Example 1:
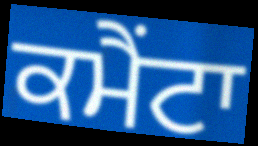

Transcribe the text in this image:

ਕਮੈਂਟਾ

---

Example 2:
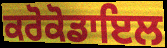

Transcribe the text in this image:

ਕਰੋਕੋਡਾਇਲ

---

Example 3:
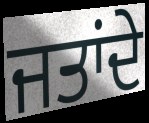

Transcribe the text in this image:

ਜਤਾਂਦੇ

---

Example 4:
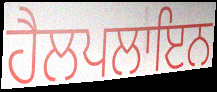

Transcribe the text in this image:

ਹੈਲਪਲਾਇਨ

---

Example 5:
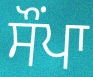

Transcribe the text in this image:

ਸੌਂਪਾ